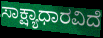
ಸಾಕ್ಷ್ಯಾಧಾರವಿದೆ